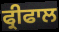
ਫ੍ਰੀਫਾਲ